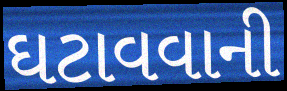
ઘટાવવાની